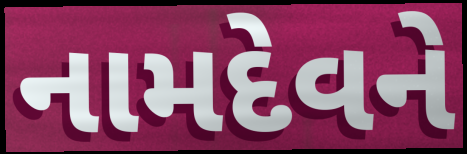
નામદેવને